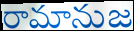
రామానుజ